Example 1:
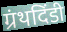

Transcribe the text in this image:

ग्रंथदिंडी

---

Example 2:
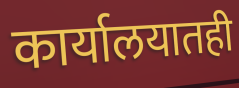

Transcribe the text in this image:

कार्यालयातही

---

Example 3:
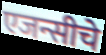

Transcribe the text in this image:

एजन्सीचे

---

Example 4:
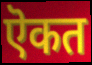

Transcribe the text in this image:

ऎकत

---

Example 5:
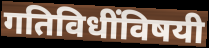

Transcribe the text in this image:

गतिविधींविषयी